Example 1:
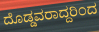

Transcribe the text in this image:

ದೊಡ್ಡವರಾದ್ದರಿಂದ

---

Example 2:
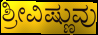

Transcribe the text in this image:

ಶ್ರೀವಿಷ್ಣುವು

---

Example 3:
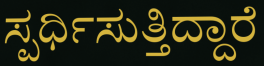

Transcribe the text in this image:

ಸ್ಪರ್ಧಿಸುತ್ತಿದ್ದಾರೆ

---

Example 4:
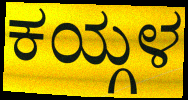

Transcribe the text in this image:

ಕಯ್ಗಳ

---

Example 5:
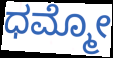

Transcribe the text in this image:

ಧಮ್ಮೋ